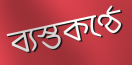
ব্যস্তকণ্ঠে